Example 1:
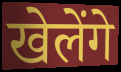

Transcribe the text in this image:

खेलेंगे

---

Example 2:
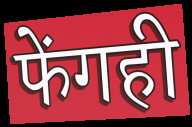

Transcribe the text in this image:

फेंगही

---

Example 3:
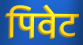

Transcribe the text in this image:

पिवेट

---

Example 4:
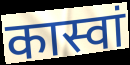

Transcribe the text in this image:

कास्वां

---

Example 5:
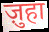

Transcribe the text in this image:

ज़ुहा